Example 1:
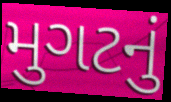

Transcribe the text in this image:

મુગટનું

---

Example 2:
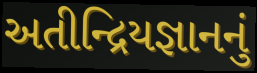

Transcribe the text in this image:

અતીન્દ્રિયજ્ઞાનનું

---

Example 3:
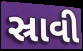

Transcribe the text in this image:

સ્રાવી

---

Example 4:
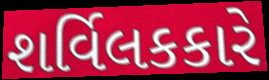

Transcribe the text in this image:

શર્વિલકકારે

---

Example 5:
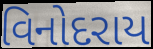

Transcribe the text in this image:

વિનોદરાય